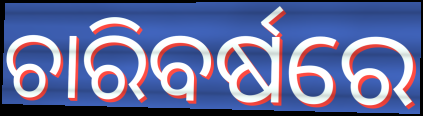
ଚାରିବର୍ଷରେ